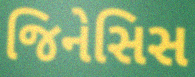
જિનેસિસ